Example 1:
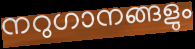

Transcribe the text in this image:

നറുഗാനങ്ങളും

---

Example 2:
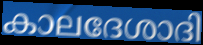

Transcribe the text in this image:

കാലദേശാദി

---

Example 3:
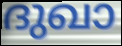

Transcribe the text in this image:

ദുഖാ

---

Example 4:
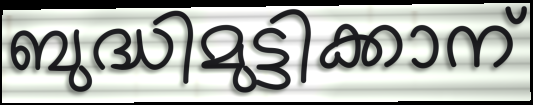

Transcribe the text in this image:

ബുദ്ധിമുട്ടിക്കാന്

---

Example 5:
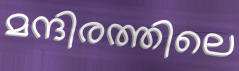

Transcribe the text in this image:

മന്ദിരത്തിലെ